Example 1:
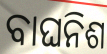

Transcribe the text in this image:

ବାଘନିଶ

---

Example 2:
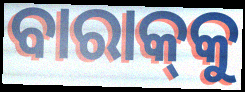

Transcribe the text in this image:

ବାରାକ୍‌କୁ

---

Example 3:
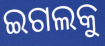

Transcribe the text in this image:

ଇଗଲକୁ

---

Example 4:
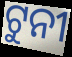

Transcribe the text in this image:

ଟୁନୀ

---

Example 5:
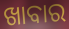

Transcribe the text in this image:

ଖାବାର